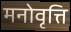
मनोवृत्ति